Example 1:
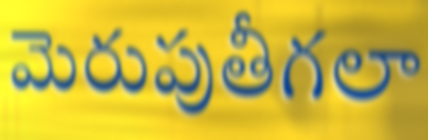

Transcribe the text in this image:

మెరుపుతీగలా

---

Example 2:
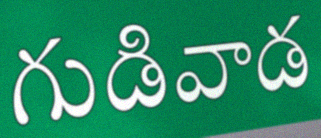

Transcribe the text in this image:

గుడివాడ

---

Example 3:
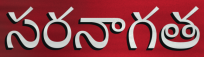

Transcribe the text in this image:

సరనాగత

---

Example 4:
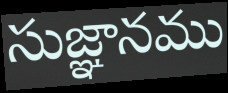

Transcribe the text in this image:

సుజ్ఞానము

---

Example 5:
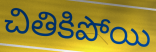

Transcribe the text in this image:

చితికిపోయి